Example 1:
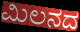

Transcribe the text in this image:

ಮಿಲನದ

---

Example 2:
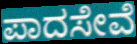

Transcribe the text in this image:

ಪಾದಸೇವೆ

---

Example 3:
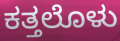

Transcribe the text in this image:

ಕತ್ತಲೊಳು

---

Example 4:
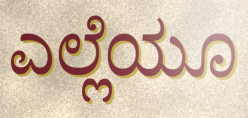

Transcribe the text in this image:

ಎಲ್ಲೆಯೂ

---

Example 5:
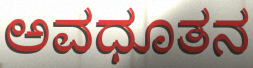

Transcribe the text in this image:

ಅವಧೂತನ